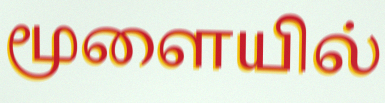
மூளையில்